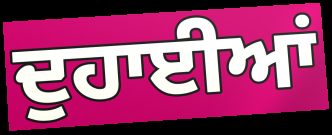
ਦੁਹਾਈਆਂ